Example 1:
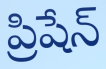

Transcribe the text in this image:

ప్రిషేన్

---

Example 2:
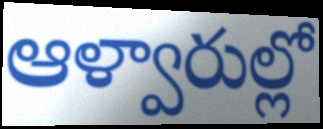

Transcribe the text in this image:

ఆళ్వారుల్లో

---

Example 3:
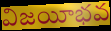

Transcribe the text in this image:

విజయీభవ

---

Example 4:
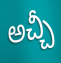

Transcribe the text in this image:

అచ్చీ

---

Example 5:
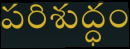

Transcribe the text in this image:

పరిశుద్ధం